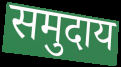
समुदाय